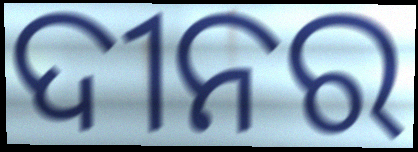
ଦୀନର